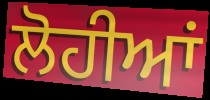
ਲੋਹੀਆਂ